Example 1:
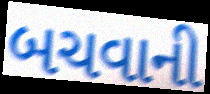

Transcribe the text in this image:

બચવાની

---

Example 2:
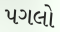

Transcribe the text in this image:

પગલો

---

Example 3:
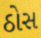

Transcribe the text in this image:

ઠોસ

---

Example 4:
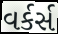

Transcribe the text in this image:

વર્કર્સ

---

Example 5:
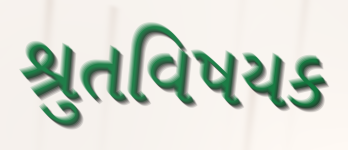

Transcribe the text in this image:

શ્રુતવિષયક